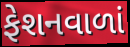
ફેશનવાળાં